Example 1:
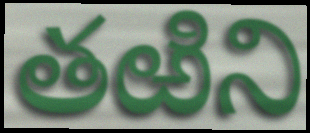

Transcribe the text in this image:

తఱిని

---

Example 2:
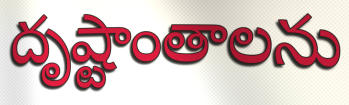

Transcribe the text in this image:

దృష్టాంతాలను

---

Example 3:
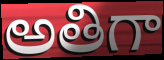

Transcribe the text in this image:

అతిగా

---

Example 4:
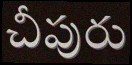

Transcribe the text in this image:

చీపురు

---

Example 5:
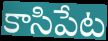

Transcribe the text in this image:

కాసిపేట